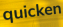
quicken